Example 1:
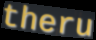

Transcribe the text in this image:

theru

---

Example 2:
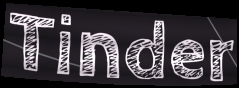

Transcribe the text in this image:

Tinder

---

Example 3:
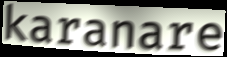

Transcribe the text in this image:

karanare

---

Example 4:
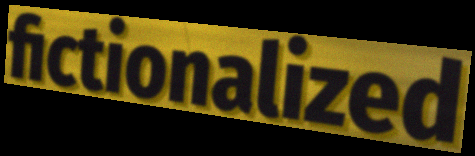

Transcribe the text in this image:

fictionalized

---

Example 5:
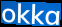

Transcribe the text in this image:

okka